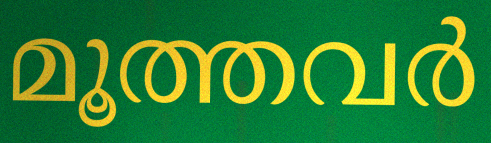
മൂത്തവർ